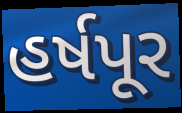
હર્ષપૂર